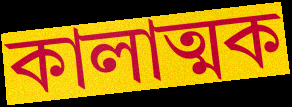
কালাত্মক